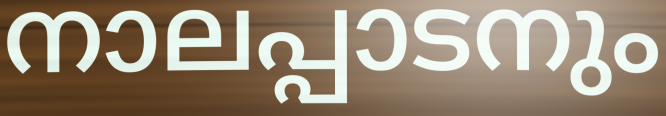
നാലപ്പാടനും